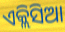
ଏକ୍ଲିସିଆ